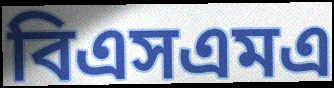
বিএসএমএ